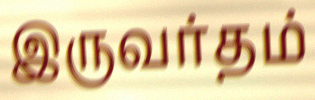
இருவர்தம்